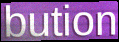
bution